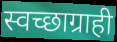
स्वच्छाग्राही